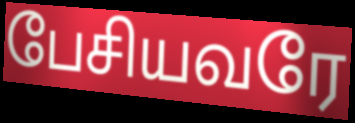
பேசியவரே